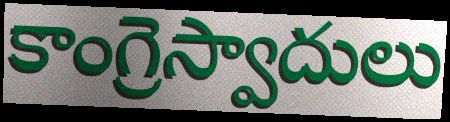
కాంగ్రెస్వాదులు